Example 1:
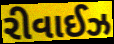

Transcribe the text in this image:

રીવાઈઝ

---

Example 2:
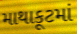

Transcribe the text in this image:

માથાકૂટમાં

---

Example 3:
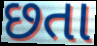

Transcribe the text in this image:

છતા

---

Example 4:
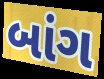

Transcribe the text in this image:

બાંગ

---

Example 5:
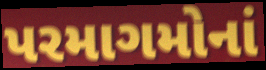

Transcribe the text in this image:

પરમાગમોનાં